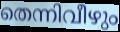
തെന്നിവീഴും